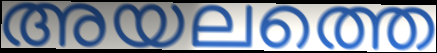
അയലത്തെ